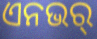
ଏନଭର୍